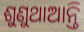
ଶୁଣୁଥାଆନ୍ତି